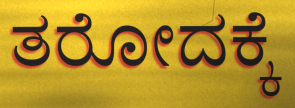
ತರೋದಕ್ಕೆ